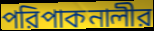
পরিপাকনালীর